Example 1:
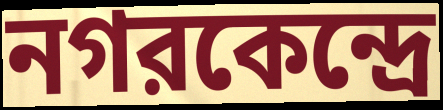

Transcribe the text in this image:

নগরকেন্দ্রে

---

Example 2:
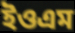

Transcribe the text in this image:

ইওএম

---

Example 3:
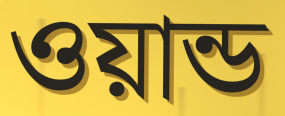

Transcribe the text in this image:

ওয়ান্ড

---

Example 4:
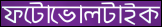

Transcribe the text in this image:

ফটোভোলটাইক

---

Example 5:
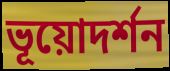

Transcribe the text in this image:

ভূয়োদর্শন